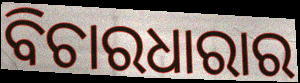
ବିଚାରଧାରାର